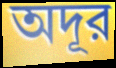
অদূর